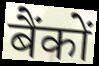
बैंकों